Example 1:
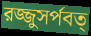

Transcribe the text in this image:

রজ্জুসর্পবত্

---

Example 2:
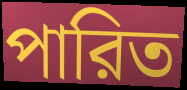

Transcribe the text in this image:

পারিত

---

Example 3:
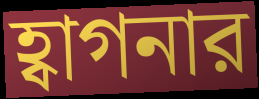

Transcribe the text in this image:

হ্বাগনার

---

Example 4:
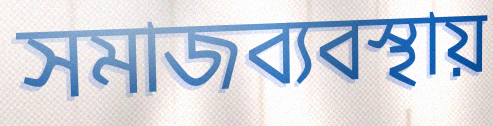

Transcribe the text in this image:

সমাজব্যবস্থায়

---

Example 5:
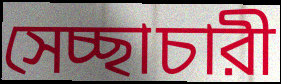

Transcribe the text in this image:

সেচ্ছাচারী